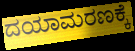
ದಯಾಮರಣಕ್ಕೆ